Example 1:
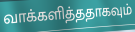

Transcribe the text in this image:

வாக்களித்ததாகவும்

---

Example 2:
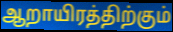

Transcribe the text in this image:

ஆறாயிரத்திற்கும்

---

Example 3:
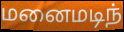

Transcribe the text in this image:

மனைமடிந்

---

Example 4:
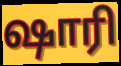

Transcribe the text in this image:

ஷாரி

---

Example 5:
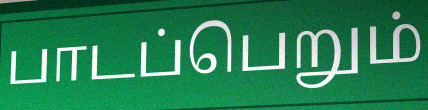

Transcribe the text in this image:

பாடப்பெறும்